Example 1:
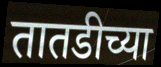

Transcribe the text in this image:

तातडीच्या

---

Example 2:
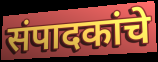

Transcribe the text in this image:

संपादकांचे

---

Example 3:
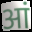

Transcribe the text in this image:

आं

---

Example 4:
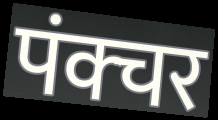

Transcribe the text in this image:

पंक्‍चर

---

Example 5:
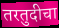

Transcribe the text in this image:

तरतुदीचा